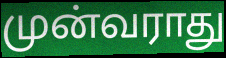
முன்வராது